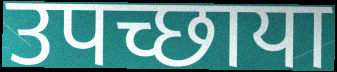
उपच्छाया